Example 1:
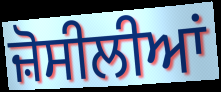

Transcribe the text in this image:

ਜ਼ੋਸੀਲੀਆਂ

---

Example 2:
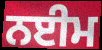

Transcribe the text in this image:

ਨਈਮ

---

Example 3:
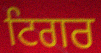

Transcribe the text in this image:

ਟਿਗਰ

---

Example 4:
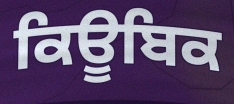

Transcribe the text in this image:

ਕਿਊਬਿਕ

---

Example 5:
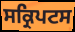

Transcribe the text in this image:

ਸਕ੍ਰਿਪਟਸ